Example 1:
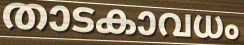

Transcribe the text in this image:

താടകാവധം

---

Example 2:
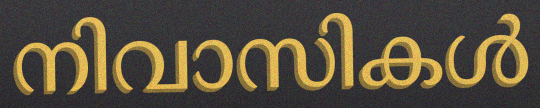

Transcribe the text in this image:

നിവാസികൾ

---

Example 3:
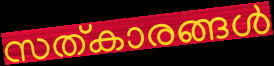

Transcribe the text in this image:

സത്കാരങ്ങൾ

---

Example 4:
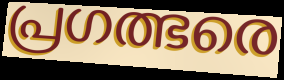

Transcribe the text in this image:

പ്രഗത്ഭരെ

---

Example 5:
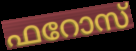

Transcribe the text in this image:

ഫറോസ്